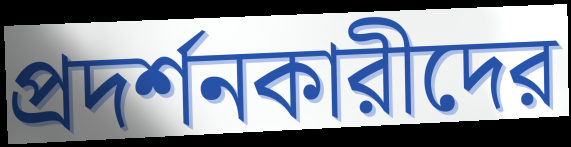
প্রদর্শনকারীদের